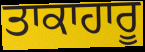
ਤਾਕਾਹਾਰੂ